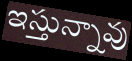
ఇస్తున్నావు